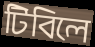
টিবিলে